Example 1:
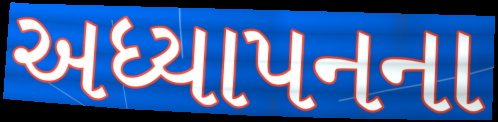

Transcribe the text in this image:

અધ્યાપનના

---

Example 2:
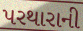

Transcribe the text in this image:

પરથારાની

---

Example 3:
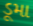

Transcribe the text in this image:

ડૂમા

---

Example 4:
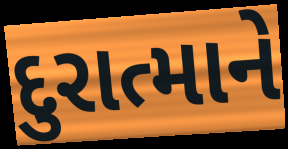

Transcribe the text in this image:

દુરાત્માને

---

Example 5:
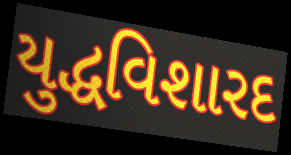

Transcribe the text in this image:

યુદ્ધવિશારદ